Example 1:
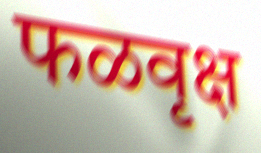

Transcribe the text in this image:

फळवृक्ष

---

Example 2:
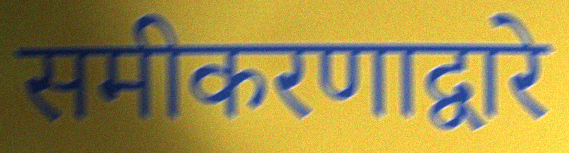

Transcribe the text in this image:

समीकरणाद्वारे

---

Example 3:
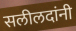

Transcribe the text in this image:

सलीलदांनी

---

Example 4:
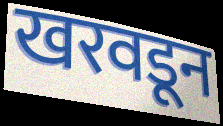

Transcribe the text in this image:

खरवडून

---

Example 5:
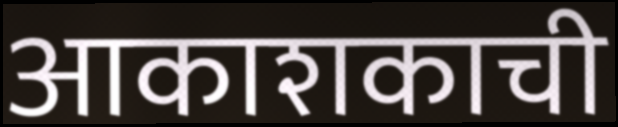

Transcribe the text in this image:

आकाशकाची